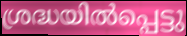
ശ്രദ്ധയിൽപ്പെട്ടു